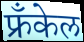
फ्रँकेल